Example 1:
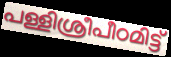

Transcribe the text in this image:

പള്ളിശ്രീപീഠമിട്ട്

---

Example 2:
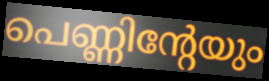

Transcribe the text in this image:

പെണ്ണിന്റേയും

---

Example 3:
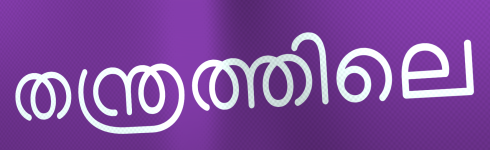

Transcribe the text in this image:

തന്ത്രത്തിലെ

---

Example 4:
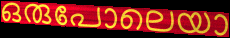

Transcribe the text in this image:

ഒരുപോലെയാ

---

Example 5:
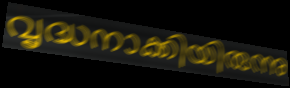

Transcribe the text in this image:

വൃദ്ധനാക്കിയിരുന്നു